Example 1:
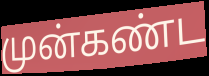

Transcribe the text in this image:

முன்கண்ட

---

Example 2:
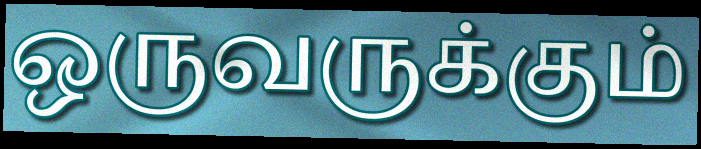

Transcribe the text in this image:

ஒருவருக்கும்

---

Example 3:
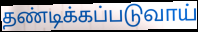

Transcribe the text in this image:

தண்டிக்கப்படுவாய்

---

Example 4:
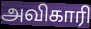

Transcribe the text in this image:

அவிகாரி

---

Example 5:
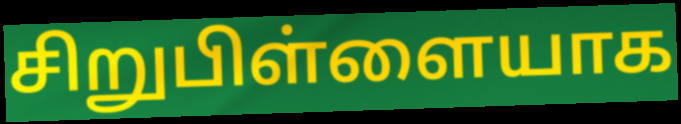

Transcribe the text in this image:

சிறுபிள்ளையாக